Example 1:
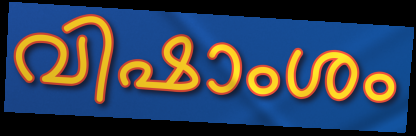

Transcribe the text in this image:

വിഷാംശം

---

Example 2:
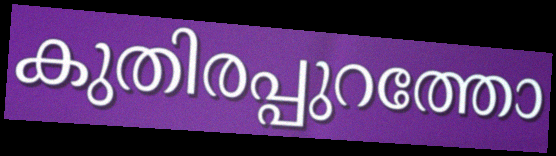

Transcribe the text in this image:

കുതിരപ്പുറത്തോ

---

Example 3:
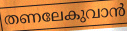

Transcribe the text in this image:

തണലേകുവാൻ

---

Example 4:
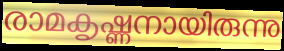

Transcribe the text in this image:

രാമകൃഷ്ണനായിരുന്നു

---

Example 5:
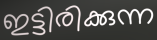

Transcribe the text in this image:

ഇട്ടിരിക്കുന്ന